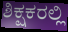
ಶಿಕ್ಷಕರಲ್ಲಿ